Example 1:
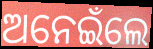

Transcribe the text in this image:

ଅନେଇଁଲେ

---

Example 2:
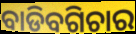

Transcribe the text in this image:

ବାଡିବଗିଚାର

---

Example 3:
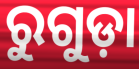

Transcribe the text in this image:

ରୁଗୁଡ଼ା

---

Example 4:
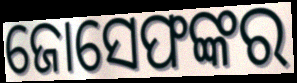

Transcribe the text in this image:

ଜୋସେଫଙ୍କର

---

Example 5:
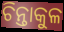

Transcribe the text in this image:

ଚିନ୍ତାକୁଳ